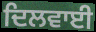
ਦਿਲਵਾਈ